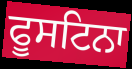
ਫੂਸਟਿਨਾ